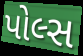
પોલ્સ